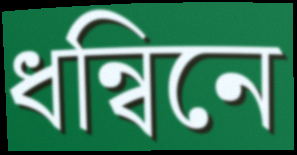
ধন্বিনে